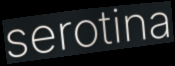
serotina